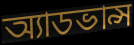
অ্যাডভান্স